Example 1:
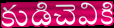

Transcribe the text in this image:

కుడిచెవికి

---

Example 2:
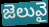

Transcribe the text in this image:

జెలువై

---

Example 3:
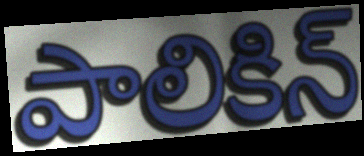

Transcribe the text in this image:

పాలికిన్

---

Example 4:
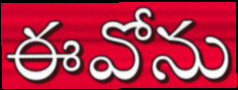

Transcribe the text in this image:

ఈవోను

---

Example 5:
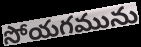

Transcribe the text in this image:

సోయగమును